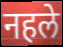
नहले